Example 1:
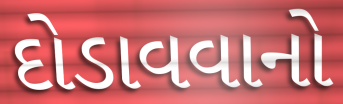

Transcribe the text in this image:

દોડાવવાનો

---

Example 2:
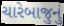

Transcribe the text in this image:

ચારેબાજુનું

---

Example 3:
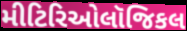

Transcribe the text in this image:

મીટિરિઓલૉજિકલ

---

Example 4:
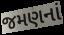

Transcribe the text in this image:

જમણનાં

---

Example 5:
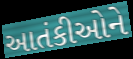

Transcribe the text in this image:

આતંકીઓને